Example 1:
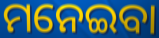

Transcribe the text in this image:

ମନେଇବା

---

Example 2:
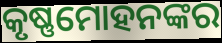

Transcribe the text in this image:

କୃଷ୍ଣମୋହନଙ୍କର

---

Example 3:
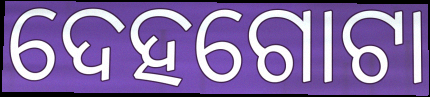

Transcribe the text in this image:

ଦେହଗୋଟା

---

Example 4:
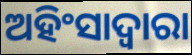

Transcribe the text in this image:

ଅହିଂସାଦ୍ୱାରା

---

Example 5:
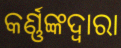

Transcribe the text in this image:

କର୍ଣ୍ଣଙ୍କଦ୍ୱାରା